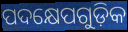
ପଦକ୍ଷେପଗୁଡ଼ିକ